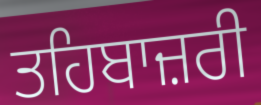
ਤਹਿਬਾਜ਼ਰੀ